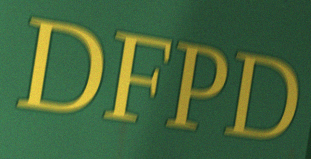
DFPD